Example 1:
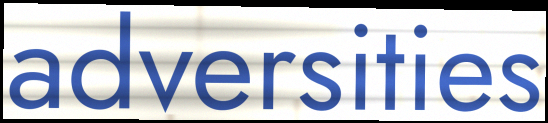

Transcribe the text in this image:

adversities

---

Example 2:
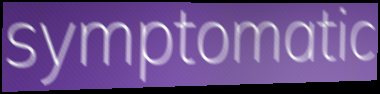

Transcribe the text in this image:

symptomatic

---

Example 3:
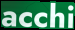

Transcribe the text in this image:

acchi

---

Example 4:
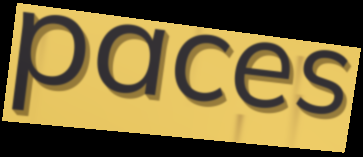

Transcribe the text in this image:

paces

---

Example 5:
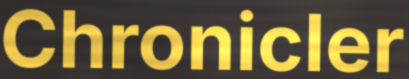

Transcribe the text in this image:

Chronicler